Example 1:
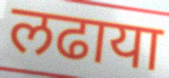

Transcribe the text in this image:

लढाया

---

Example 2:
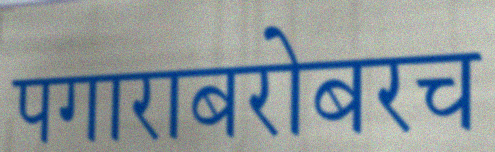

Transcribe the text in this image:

पगाराबरोबरच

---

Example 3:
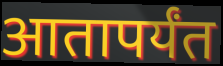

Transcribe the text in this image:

आतापर्यंत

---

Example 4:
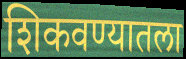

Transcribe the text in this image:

शिकवण्यातला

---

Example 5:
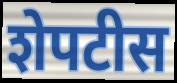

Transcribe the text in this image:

शेपटीस